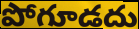
పోగూడదు